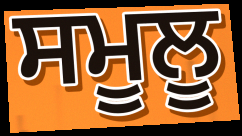
ਸਮੂਲੂ